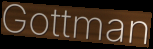
Gottman